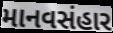
માનવસંહાર